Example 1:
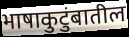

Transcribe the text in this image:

भाषाकुटुंबातील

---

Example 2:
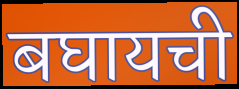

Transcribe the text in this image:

बघायची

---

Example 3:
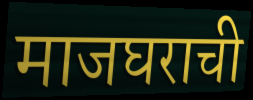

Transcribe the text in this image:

माजघराची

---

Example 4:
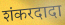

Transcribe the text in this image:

शंकरदादा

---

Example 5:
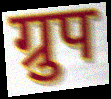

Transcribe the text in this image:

ग्रुप